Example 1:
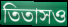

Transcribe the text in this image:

তিতাসও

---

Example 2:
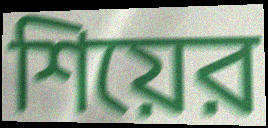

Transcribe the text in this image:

শিয়ের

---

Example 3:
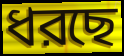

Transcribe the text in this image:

ধরছে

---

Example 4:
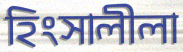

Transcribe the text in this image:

হিংসালীলা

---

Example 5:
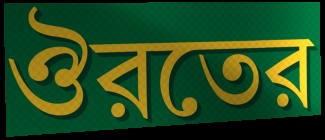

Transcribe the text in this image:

ঔরতের